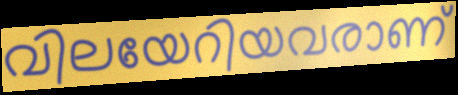
വിലയേറിയവരാണ്